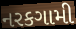
નરકગામી